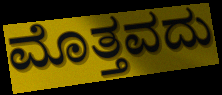
ಮೊತ್ತವದು